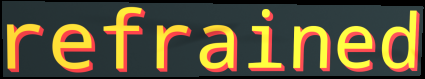
refrained